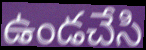
ఉండచేసి